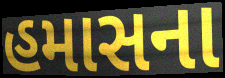
હમાસના